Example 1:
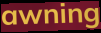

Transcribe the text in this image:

awning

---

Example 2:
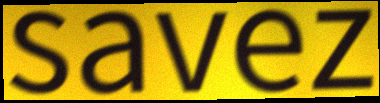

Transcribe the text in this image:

savez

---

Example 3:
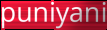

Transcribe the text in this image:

puniyani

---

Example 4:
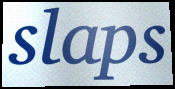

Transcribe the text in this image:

slaps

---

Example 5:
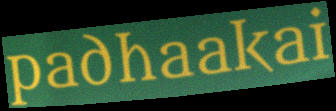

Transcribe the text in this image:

padhaakai